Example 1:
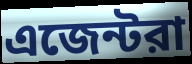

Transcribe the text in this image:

এজেন্টরা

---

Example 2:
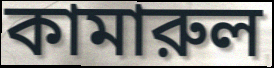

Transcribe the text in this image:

কামারুল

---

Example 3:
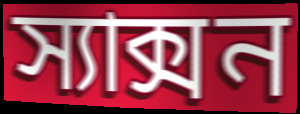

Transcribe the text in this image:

স্যাক্সন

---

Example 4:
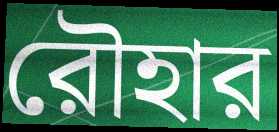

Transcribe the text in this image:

রৌহার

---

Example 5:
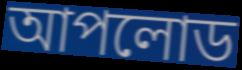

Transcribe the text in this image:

আপলোড